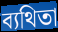
ব্যথিতা